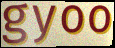
gyoo